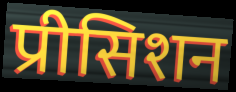
प्रीसिशन